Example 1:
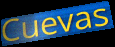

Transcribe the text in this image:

Cuevas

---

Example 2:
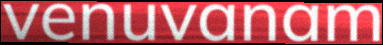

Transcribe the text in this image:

venuvanam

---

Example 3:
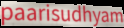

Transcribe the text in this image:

paarisudhyam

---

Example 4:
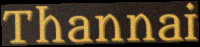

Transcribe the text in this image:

Thannai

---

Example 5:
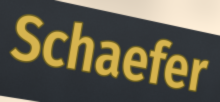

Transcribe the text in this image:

Schaefer